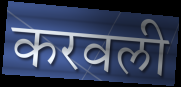
करवली